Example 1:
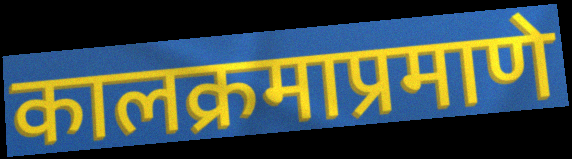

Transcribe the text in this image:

कालक्रमाप्रमाणे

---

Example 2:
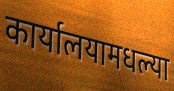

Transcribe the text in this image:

कार्यालयामधल्या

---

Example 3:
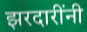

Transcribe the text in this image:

झरदारींनी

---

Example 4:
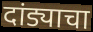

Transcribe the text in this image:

दांड्याचा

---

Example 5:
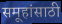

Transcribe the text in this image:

समूहांसाठी